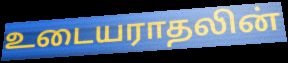
உடையராதலின்